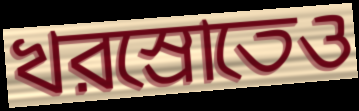
খরস্রোতেও